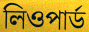
লিওপার্ড